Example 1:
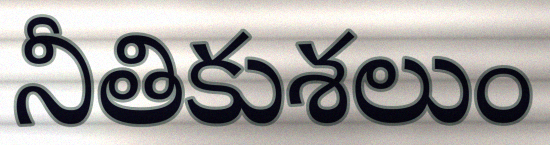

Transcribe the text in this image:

నీతికుశలుం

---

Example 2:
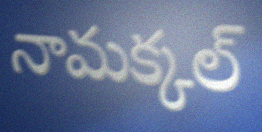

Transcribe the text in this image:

నామక్కల్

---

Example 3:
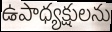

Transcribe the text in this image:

ఉపాధ్యక్షులను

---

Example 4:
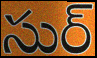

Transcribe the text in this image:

సుర్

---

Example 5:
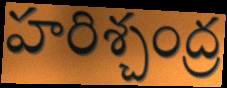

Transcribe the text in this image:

హరిశ్చంద్ర